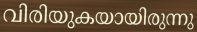
വിരിയുകയായിരുന്നു